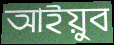
আইয়ুব